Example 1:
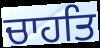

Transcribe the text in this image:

ਚਾਹਤਿ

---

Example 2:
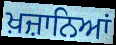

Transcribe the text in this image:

ਖ਼ਜ਼ਾਨਿਆਂ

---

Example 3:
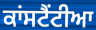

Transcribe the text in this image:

ਕਾਂਸਟੈਂਟੀਆ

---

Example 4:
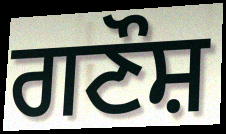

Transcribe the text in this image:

ਗਣੌਸ਼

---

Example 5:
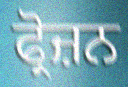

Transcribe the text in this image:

ਫ੍ਰੋਜ਼ਨ